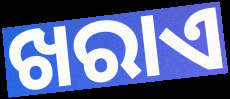
ଖରାଏ